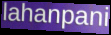
lahanpani